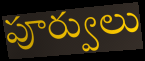
పూర్వులు